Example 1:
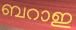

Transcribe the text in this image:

ബറാഇ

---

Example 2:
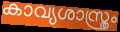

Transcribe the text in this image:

കാവ്യശാസ്ത്രം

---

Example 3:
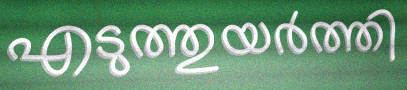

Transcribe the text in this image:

എടുത്തുയർത്തി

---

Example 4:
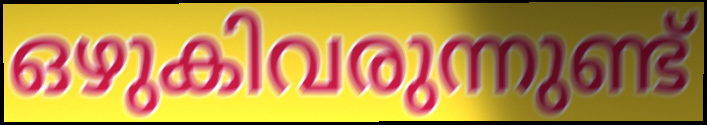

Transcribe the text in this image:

ഒഴുകിവരുന്നുണ്ട്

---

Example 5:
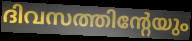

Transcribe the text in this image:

ദിവസത്തിന്റേയും